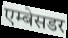
एम्बेसडर